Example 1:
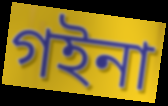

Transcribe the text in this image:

গইনা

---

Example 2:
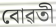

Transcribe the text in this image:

বোৱতী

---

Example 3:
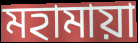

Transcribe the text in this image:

মহামায়া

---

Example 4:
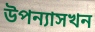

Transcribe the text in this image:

উপন্যাসখন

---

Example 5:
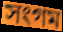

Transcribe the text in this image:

সংগম